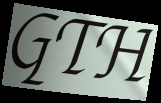
GTH